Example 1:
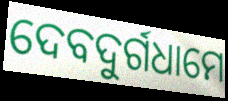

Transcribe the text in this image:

ଦେବଦୁର୍ଗଧାମେ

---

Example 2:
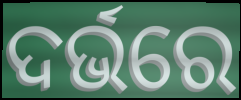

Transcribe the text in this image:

ଦର୍ଭରେ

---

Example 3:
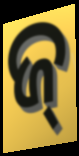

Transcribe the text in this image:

ଜ୍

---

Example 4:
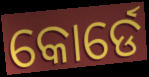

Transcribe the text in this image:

କୋର୍ଡେ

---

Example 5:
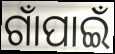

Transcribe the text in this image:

ଗାଁପାଇଁ